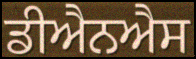
ਡੀਐਨਐਸ